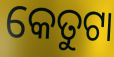
କେତୁଟା